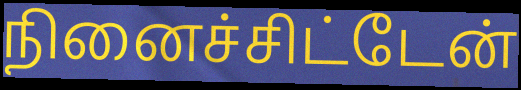
நினைச்சிட்டேன்